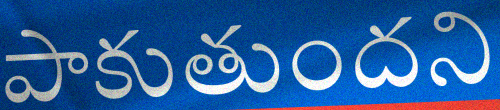
పాకుతుందని